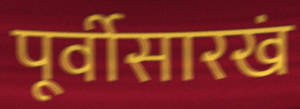
पूर्वीसारखं